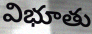
విభూతు